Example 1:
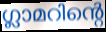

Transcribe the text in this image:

ഗ്ലാമറിന്റെ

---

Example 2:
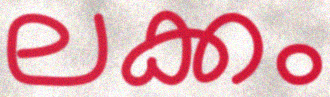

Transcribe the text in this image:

ലക്കം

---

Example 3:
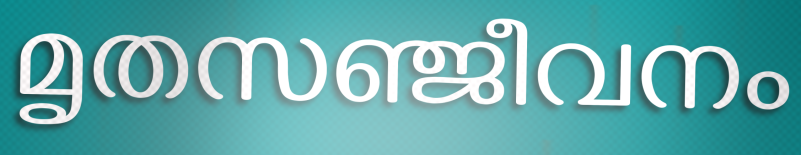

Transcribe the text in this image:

മൃതസഞ്ജീവനം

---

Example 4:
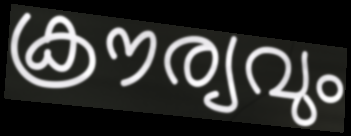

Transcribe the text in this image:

ക്രൗര്യവും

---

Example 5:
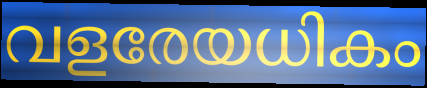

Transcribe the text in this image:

വളരേയധികം